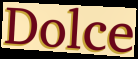
Dolce